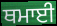
ਥਮਾਈ